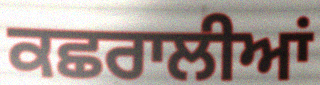
ਕਛਰਾਲੀਆਂ